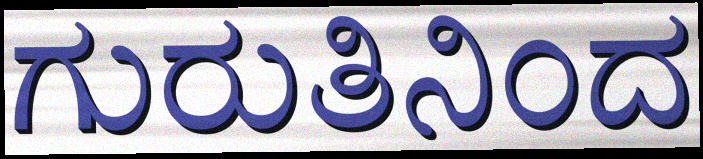
ಗುರುತಿನಿಂದ